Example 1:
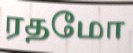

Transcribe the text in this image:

ரதமோ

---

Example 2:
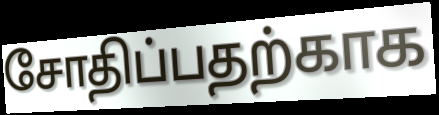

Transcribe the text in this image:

சோதிப்பதற்காக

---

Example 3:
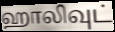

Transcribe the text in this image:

ஹாலிவுட்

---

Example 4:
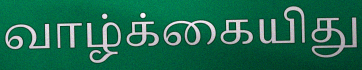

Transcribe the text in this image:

வாழ்க்கையிது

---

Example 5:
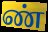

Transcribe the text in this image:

ண்